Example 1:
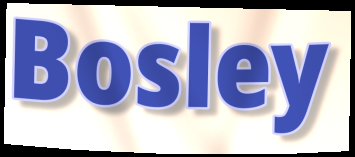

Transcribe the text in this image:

Bosley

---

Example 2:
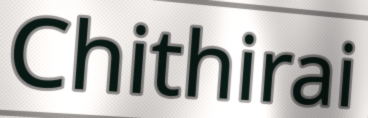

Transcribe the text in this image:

Chithirai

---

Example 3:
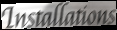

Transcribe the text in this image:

Installations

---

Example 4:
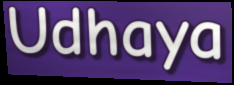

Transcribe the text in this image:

Udhaya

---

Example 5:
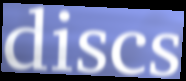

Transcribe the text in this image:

discs